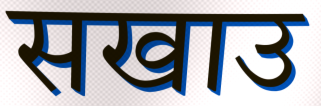
सखाउ